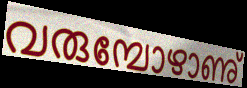
വരുമ്പോഴാണു്